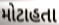
મોટાહતા